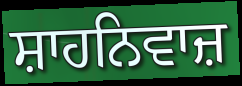
ਸ਼ਾਹਨਿਵਾਜ਼